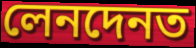
লেনদেনত